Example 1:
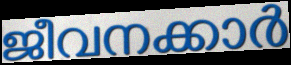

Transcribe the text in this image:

ജീവനക്കാർ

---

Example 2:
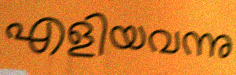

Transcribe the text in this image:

എളിയവന്നു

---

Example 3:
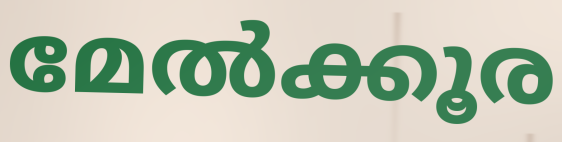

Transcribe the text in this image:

മേൽക്കൂര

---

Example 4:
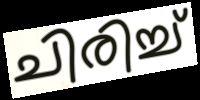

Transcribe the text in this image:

ചിരിച്ച്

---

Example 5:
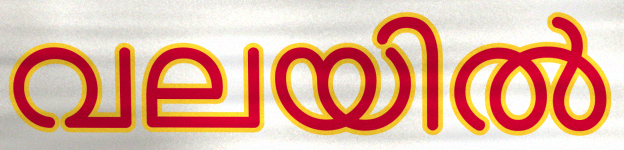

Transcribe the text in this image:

വലയിൽ